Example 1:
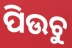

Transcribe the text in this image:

ପିଉଚୁ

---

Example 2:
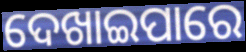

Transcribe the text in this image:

ଦେଖାଇପାରେ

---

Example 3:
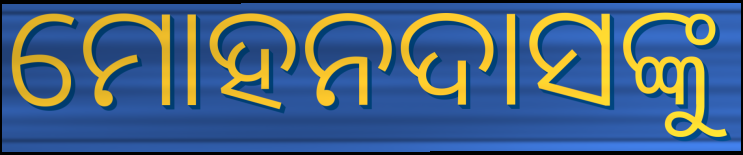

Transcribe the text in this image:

ମୋହନଦାସଙ୍କୁ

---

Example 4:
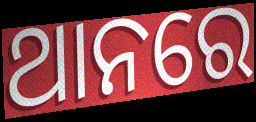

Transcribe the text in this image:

ଥାନରେ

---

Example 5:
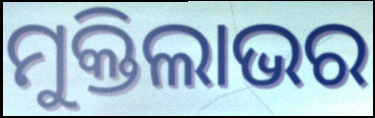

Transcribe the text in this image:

ମୁକ୍ତିଲାଭର